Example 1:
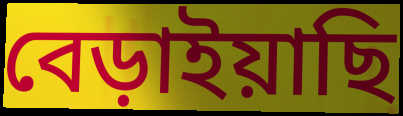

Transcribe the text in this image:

বেড়াইয়াছি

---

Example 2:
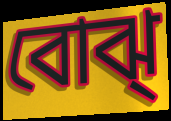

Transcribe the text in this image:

বোঝ্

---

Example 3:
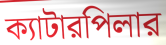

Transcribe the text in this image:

ক্যাটারপিলার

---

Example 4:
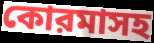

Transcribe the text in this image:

কোরমাসহ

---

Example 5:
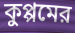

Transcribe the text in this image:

কুপ্পমের